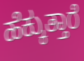
ಹೆಕ್ಕುತ್ತಾರೆ